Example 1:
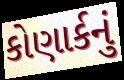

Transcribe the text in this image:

કોણાર્કનું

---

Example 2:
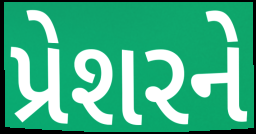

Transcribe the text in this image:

પ્રેશરને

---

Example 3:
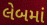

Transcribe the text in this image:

લેબમાં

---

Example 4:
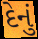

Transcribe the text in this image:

દેનું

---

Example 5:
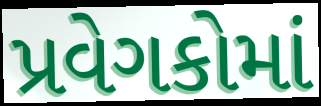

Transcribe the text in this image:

પ્રવેગકોમાં